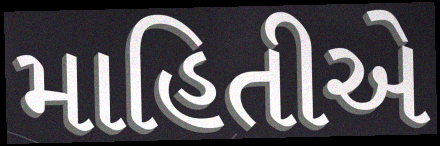
માહિતીએ